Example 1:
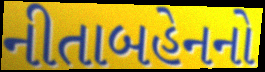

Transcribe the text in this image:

નીતાબહેનનો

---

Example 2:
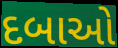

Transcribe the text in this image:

દબાઓ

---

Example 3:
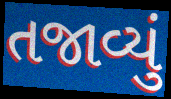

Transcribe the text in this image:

તજાવ્યું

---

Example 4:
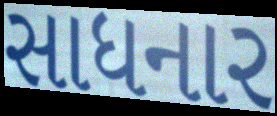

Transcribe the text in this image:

સાધનાર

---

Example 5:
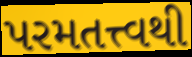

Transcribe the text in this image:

પરમતત્ત્વથી